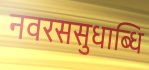
नवरससुधाब्धि